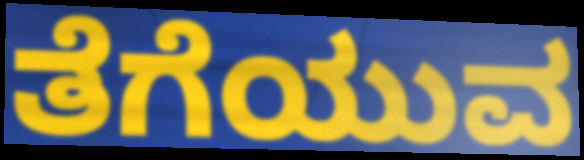
ತೆಗೆಯುವ